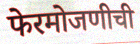
फेरमोजणीची